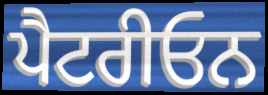
ਪੈਟਰੀਓਨ